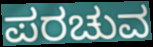
ಪರಚುವ